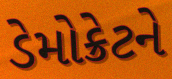
ડેમોક્રેટને